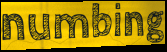
numbing